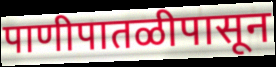
पाणीपातळीपासून